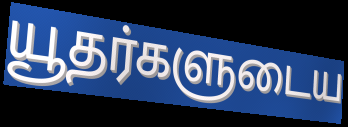
யூதர்களுடைய